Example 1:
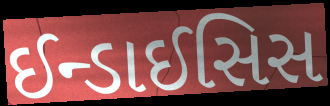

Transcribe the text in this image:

ઈન્ડાઈસિસ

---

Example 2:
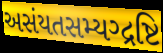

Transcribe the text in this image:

અસંયતસમ્યગ્દ્રષ્ટિ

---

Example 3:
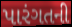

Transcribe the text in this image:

પારંગતની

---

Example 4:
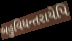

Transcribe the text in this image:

બહુવિધન્તરાયેપિ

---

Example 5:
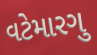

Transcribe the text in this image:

વટેમારગુ